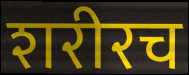
शरीरच